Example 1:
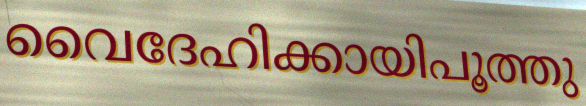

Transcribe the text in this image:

വൈദേഹിക്കായിപൂത്തു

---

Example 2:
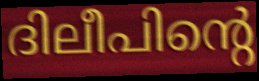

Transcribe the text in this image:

ദിലീപിന്റെ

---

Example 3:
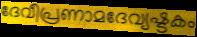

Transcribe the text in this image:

ദേവീപ്രണാമദേവ്യഷ്ടകം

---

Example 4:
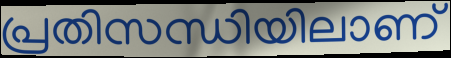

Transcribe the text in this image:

പ്രതിസന്ധിയിലാണ്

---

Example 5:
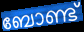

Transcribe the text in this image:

ബോണ്ട്